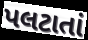
પલટાતાં